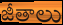
జీతాలు